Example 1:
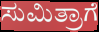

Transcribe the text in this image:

ಸುಮಿತ್ರಾಗೆ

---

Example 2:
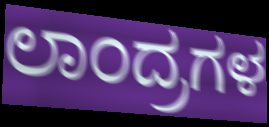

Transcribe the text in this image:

ಲಾಂದ್ರಗಳ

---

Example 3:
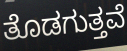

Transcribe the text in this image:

ತೊಡಗುತ್ತವೆ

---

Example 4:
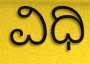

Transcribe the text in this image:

ವಿಧಿ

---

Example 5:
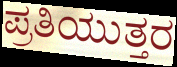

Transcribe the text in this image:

ಪ್ರತಿಯುತ್ತರ